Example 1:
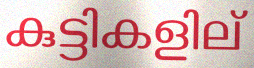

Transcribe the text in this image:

കുട്ടികളില്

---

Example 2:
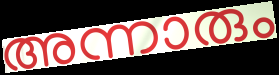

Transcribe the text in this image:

അന്നാരും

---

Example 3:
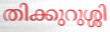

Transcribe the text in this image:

തിക്കുറുശ്ശി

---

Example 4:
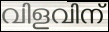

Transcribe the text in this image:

വിളവിന്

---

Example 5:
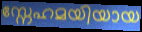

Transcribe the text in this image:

സ്നേഹമയിയായ